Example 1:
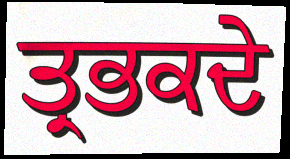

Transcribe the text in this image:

ਤ੍ਰਭਕਦੇ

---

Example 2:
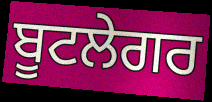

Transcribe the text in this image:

ਬੂਟਲੇਗਰ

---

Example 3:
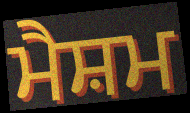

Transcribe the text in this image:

ਮੈਸ਼ਮ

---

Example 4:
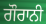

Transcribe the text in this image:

ਗੌਰਾਨੀ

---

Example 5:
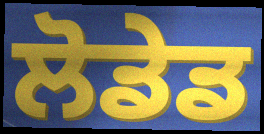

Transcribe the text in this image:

ਲੋਡੇਡ